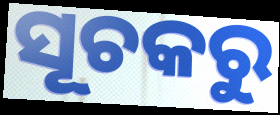
ସୂଚକରୁ